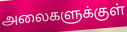
அலைகளுக்குள்